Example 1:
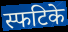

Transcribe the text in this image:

स्फटिके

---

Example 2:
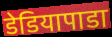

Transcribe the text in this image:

डेडियापाडा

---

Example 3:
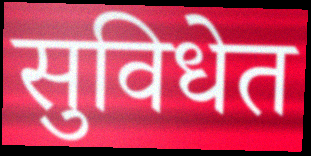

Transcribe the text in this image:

सुविधेत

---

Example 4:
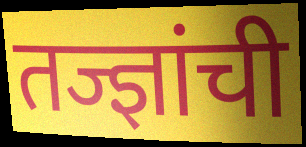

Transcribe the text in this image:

तज्ज्ञांची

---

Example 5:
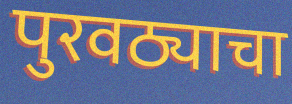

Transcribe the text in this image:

पुरवठ्याचा